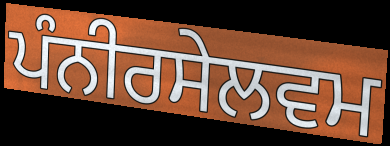
ਪੰਨੀਰਸੇਲਵਮ